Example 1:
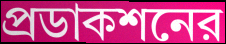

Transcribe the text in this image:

প্রডাকশনের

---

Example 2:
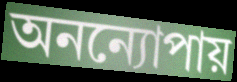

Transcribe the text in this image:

অনন্যোপায়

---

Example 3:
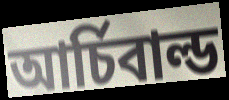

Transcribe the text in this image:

আর্চিবাল্ড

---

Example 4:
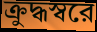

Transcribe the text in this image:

ক্রুদ্ধস্বরে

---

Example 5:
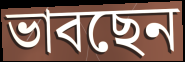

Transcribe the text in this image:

ভাবছেন